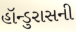
હૉન્ડુરાસની